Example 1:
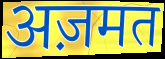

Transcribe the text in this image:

अज़मत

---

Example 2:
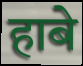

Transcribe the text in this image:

हाबे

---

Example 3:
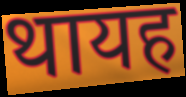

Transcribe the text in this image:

थायह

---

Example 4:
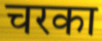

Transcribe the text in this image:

चरका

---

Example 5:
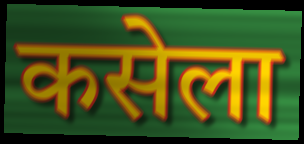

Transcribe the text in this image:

कसेला